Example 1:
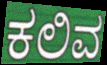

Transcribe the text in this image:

ಕಲಿವ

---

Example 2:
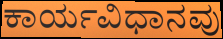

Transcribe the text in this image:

ಕಾರ್ಯವಿಧಾನವು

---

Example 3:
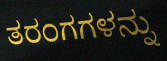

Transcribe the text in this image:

ತರಂಗಗಳನ್ನು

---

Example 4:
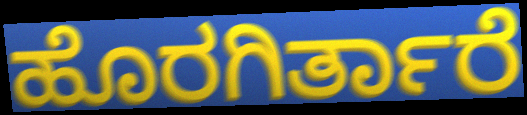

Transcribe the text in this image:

ಹೊರಗಿರ್ತಾರೆ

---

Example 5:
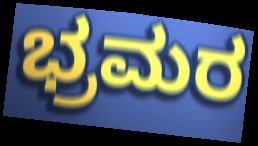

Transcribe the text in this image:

ಭ್ರಮರ